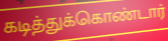
கடித்துக்கொண்டார்